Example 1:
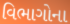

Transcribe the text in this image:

વિભાગોના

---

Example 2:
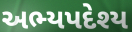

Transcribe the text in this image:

અભ્યપદેશ્ય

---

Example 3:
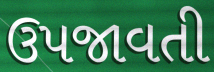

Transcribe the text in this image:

ઉપજાવતી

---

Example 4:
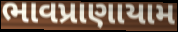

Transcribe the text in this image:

ભાવપ્રાણાયામ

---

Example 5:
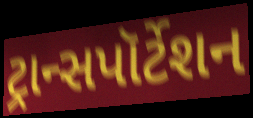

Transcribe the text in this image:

ટ્રાન્સપૉર્ટેશન